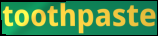
toothpaste